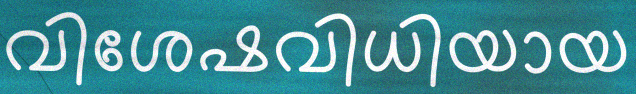
വിശേഷവിധിയായ